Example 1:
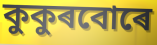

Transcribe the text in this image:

কুকুৰবোৰে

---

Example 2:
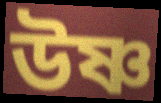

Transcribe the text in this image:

উষ্ণ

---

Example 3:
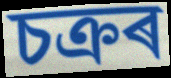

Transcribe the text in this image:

চক্ৰৰ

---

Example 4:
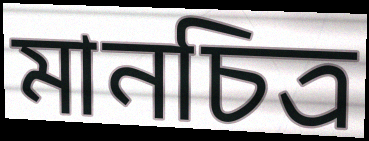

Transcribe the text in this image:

মানচিত্ৰ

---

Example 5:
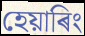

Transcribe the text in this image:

হেয়াৰিং